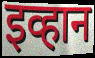
इव्हान